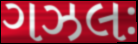
ગઝલઃ